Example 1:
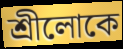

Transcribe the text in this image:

শ্রীলোকে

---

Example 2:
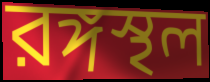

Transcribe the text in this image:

রঙ্গস্থল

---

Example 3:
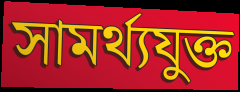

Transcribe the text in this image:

সামর্থ্যযুক্ত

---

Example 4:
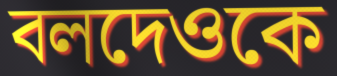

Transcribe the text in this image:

বলদেওকে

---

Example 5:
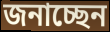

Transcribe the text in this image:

জনাচ্ছেন